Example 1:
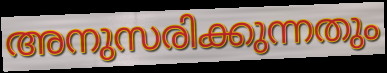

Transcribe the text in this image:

അനുസരിക്കുന്നതും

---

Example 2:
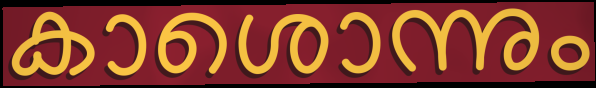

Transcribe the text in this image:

കാശൊന്നും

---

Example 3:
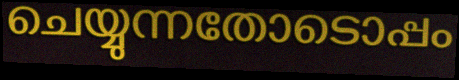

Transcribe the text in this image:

ചെയ്യുന്നതോടൊപ്പം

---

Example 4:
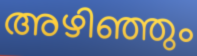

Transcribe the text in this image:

അഴിഞ്ഞും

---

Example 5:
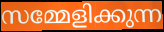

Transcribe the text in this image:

സമ്മേളിക്കുന്ന